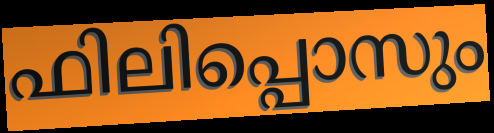
ഫിലിപ്പൊസും